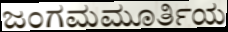
ಜಂಗಮಮೂರ್ತಿಯ